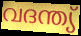
വദന്ത്യ്